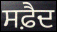
ਸਫ਼ੈਦ